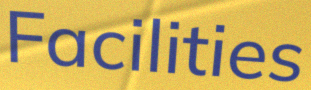
Facilities